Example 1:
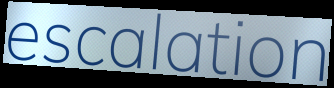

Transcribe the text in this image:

escalation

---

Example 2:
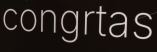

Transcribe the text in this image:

congrtas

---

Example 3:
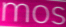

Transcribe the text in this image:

mos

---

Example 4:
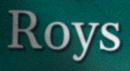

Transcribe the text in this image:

Roys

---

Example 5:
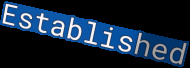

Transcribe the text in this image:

Established